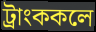
ট্রাংককলে